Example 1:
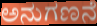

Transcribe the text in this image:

ಅನುಗಣನೆ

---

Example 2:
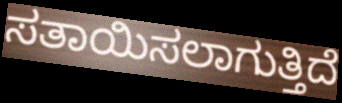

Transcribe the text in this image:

ಸತಾಯಿಸಲಾಗುತ್ತಿದೆ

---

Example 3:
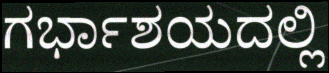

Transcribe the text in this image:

ಗರ್ಭಾಶಯದಲ್ಲಿ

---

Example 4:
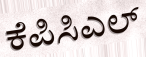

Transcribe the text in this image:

ಕೆಪಿಸಿಎಲ್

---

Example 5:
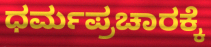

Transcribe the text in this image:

ಧರ್ಮಪ್ರಚಾರಕ್ಕೆ